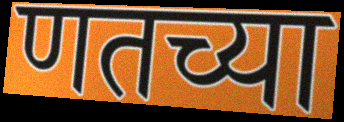
णतच्या